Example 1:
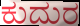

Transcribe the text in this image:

ಕುದುರ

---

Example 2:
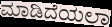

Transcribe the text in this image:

ಮಾಡಿದೆಯಲಾ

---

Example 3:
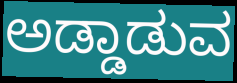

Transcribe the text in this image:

ಅಡ್ಡಾಡುವ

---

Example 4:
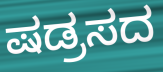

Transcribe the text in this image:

ಷಡ್ರಸದ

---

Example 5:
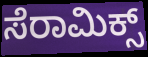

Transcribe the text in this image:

ಸೆರಾಮಿಕ್ಸ್